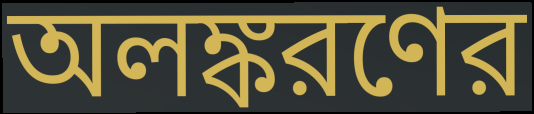
অলঙ্করণের